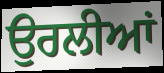
ਉਰਲੀਆਂ